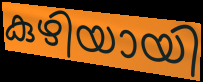
കുഴിയായി